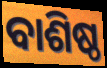
ବାଶିଷ୍ଠ